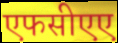
एफसीएए